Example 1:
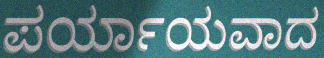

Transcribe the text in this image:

ಪರ್ಯಾಯವಾದ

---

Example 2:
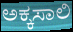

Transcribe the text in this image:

ಅಕ್ಕಸಾಲಿ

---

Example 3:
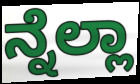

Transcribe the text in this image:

ನ್ನೆಲ್ಲಾ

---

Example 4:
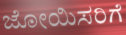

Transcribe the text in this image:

ಜೋಯಿಸರಿಗೆ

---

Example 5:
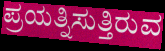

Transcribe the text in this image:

ಪ್ರಯತ್ನಿಸುತ್ತಿರುವ